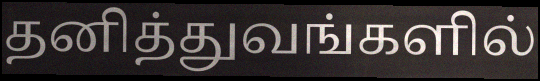
தனித்துவங்களில்